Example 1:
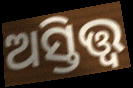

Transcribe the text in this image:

ଅସ୍ତିତ୍ତ୍ବ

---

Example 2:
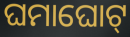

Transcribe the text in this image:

ଘମାଘୋଟ୍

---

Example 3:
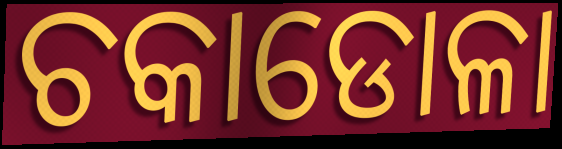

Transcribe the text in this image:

ଚକାଡୋଳା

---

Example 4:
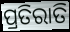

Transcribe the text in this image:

ପ୍ରତିରାତି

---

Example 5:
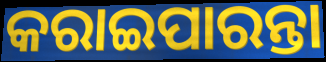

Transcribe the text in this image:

କରାଇପାରନ୍ତା